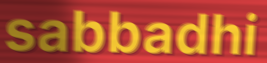
sabbadhi